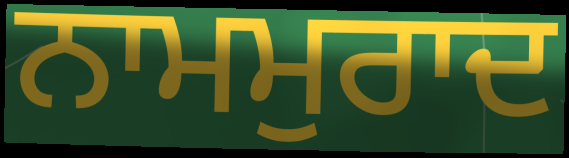
ਨਾਮਮੁਰਾਦ